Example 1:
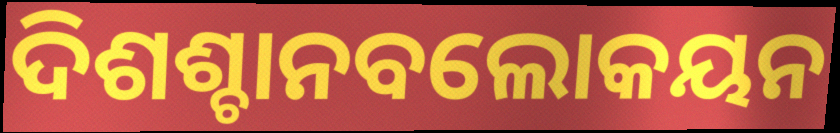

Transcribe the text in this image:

ଦିଶଶ୍ଚାନବଲୋକୟନ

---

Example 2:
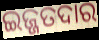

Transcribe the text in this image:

ଇଜ୍ଜତଦାର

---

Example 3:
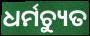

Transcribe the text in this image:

ଧର୍ମଚ୍ୟୁତ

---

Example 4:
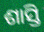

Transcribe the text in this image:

ଶାସ୍ତି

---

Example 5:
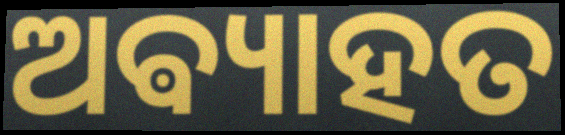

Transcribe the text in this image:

ଅଵ୍ୟାହତ